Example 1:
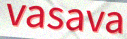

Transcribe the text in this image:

vasava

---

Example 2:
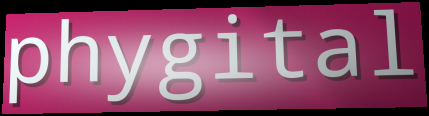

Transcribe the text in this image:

phygital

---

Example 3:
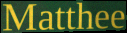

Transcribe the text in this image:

Matthee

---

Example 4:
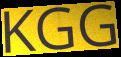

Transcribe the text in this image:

KGG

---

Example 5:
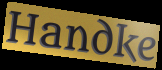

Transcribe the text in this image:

Handke